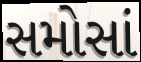
સમોસાં